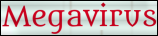
Megavirus